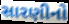
સારણીનો